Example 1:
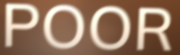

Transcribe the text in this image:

POOR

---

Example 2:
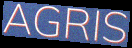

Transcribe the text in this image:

AGRIS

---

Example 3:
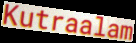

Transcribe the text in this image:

Kutraalam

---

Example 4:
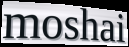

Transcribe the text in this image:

moshai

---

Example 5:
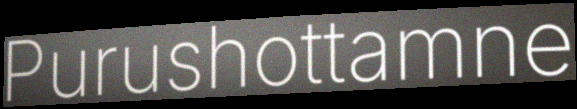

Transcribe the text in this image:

Purushottamne